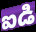
ఐడి